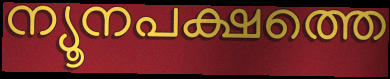
ന്യൂനപക്ഷത്തെ